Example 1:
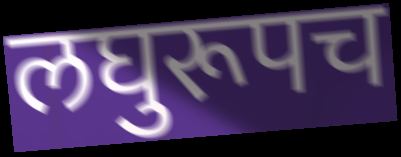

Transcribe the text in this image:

लघुरूपच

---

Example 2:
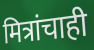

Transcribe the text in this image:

मित्रांचाही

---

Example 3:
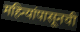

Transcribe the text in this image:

महिन्यांपासूनची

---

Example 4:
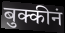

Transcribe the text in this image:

बुक्कीनं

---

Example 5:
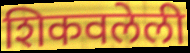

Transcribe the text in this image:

शिकवलेली